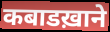
कबाडख़ाने